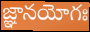
జ్ఞానయోగః